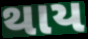
થાય